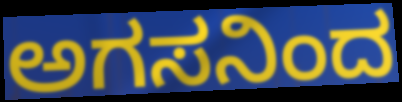
ಅಗಸನಿಂದ